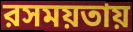
রসময়তায়